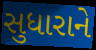
સુધારાને